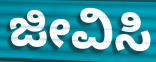
ಜೀವಿಸಿ